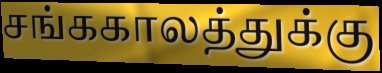
சங்ககாலத்துக்கு